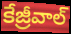
కేజ్రీవాల్